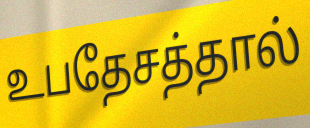
உபதேசத்தால்